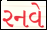
રનવે